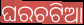
ଘରଚଟିଆ